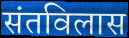
संतविलास